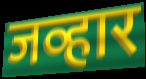
जव्हार